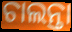
ଚାଲନ୍ତା